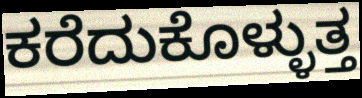
ಕರೆದುಕೊಳ್ಳುತ್ತ